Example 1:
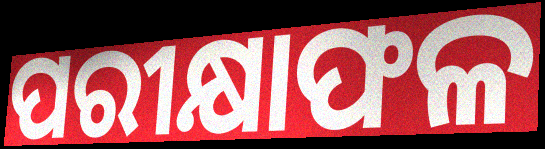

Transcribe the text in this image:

ପରୀକ୍ଷାଫଳ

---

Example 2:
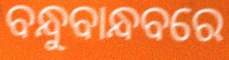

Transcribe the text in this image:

ବନ୍ଧୁବାନ୍ଧବରେ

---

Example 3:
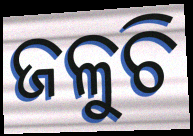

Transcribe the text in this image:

ଜଳୁଚି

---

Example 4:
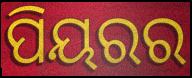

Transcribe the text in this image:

ପିୟରର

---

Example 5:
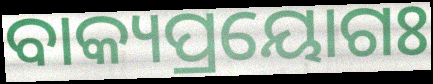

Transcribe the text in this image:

ବାକ୍ୟପ୍ରୟୋଗଃ